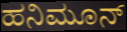
ಹನಿಮೂನ್